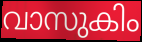
വാസുകിം